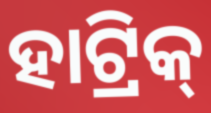
ହାଟ୍ରିକ୍